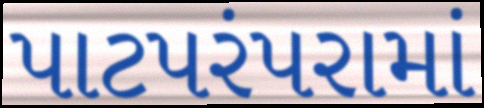
પાટપરંપરામાં